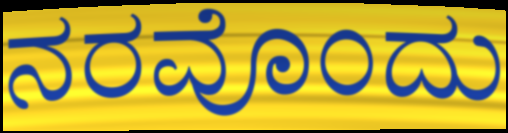
ನರವೊಂದು